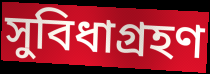
সুবিধাগ্রহণ